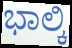
ಭಾಲ್ಕಿ